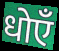
धोएँ